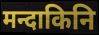
मन्दाकिनि